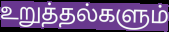
உறுத்தல்களும்